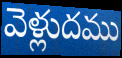
వెళ్లుదము